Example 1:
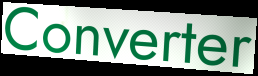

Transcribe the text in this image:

Converter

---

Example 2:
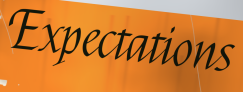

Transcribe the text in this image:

Expectations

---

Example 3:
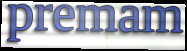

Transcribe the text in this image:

premam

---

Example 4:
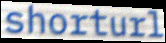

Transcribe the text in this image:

shorturl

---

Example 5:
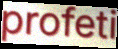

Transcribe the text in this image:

profeti